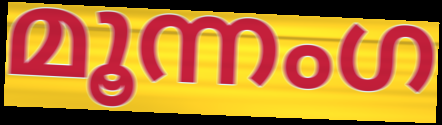
മൂന്നംഗ